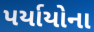
પર્યાયોના